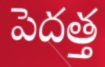
పెదత్త